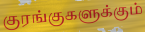
குரங்குகளுக்கும்